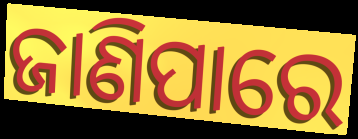
ଜାଣିପାରେ